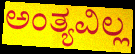
ಅಂತ್ಯವಿಲ್ಲ